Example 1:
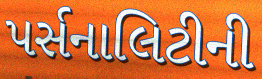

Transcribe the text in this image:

પર્સનાલિટીની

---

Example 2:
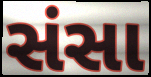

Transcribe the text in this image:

સંસા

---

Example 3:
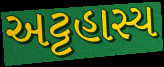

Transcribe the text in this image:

અટ્ટહાસ્ય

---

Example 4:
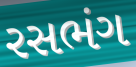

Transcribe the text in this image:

રસભંગ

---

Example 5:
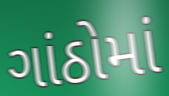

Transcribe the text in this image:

ગાંઠોમાં